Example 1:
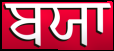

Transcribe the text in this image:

ਬਯਾ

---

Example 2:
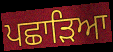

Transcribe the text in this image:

ਪਛਾੜਿਆ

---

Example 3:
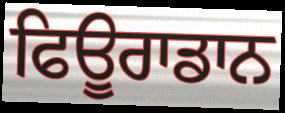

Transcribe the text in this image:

ਫਿਊਰਾਡਾਨ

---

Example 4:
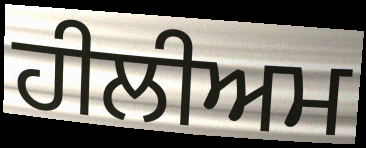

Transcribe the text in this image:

ਹੀਲੀਅਮ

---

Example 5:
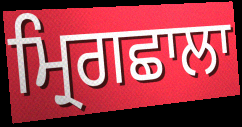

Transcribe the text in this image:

ਮ੍ਰਿਗਛਾਲਾ